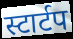
स्टार्टप